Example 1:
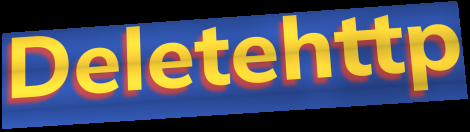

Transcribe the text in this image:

Deletehttp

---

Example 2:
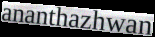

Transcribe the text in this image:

ananthazhwan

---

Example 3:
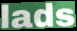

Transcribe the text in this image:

lads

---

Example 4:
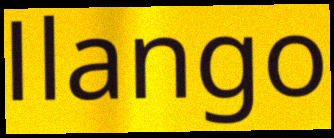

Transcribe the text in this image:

Ilango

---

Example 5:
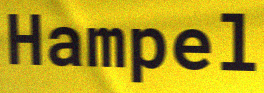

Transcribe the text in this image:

Hampel